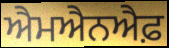
ਐਮਐਨਐਫ਼